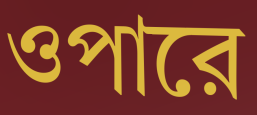
ওপারে